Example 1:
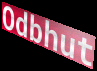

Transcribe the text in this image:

Odbhut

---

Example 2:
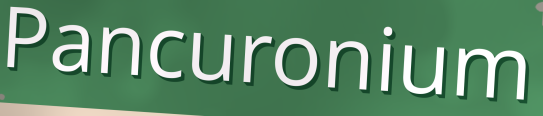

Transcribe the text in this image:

Pancuronium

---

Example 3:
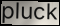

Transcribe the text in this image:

pluck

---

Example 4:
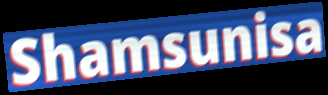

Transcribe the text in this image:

Shamsunisa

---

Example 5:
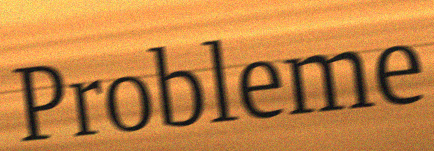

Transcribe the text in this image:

Probleme